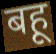
बहू